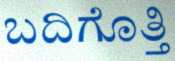
ಬದಿಗೊತ್ತಿ